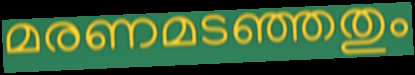
മരണമടഞ്ഞതും